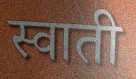
स्वाती